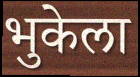
भुकेला